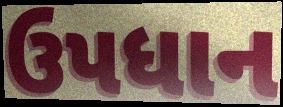
ઉપધાન